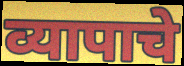
व्यापाचे